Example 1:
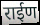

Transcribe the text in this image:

राईण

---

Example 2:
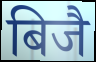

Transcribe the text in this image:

बिजै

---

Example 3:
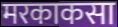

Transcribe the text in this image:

मरकाकसा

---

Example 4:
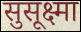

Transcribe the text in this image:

सुसूक्ष्मा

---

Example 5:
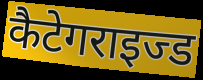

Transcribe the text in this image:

कैटेगराइज्ड